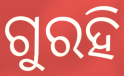
ଗୁରହି